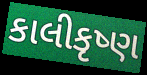
કાલીકૃષ્ણ